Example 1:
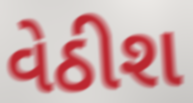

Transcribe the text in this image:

વેઠીશ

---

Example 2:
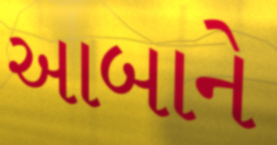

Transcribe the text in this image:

આબાને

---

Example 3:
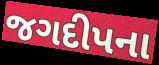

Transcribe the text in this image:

જગદીપના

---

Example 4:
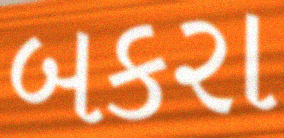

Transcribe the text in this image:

બકરા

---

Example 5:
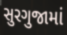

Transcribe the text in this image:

સુરગુજામાં